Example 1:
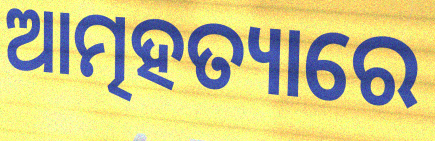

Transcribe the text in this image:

ଆତ୍ମହତ୍ୟାରେ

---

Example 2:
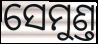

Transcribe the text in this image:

ସେମୁଣ୍ତ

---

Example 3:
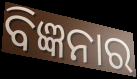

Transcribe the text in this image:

ବିଜ୍ଞନାର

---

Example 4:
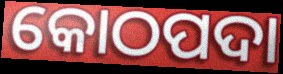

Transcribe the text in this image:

କୋଠପଦା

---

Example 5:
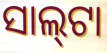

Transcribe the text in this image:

ସାଲ୍‌ଟା